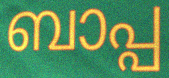
ബാപ്പ